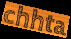
chhta